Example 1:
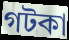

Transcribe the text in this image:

গটকা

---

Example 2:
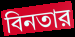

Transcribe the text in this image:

বিনতার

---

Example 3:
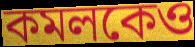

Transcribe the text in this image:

কমলকেও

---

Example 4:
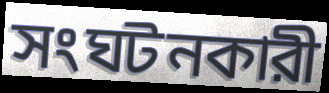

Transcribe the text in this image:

সংঘটনকারী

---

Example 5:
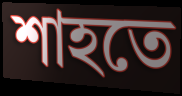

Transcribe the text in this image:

শাহতে